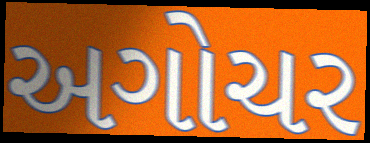
અગોચર